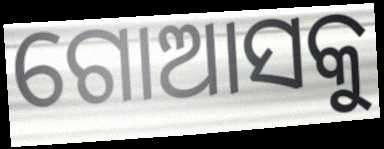
ଗୋଆସକୁ